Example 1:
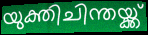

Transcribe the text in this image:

യുക്തിചിന്തയ്ക്ക്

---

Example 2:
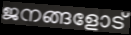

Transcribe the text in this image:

ജനങ്ങളോട്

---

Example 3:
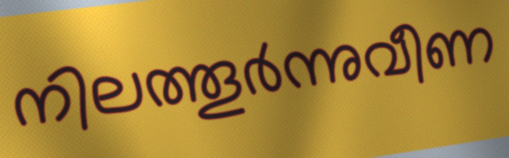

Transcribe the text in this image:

നിലത്തൂർന്നുവീണ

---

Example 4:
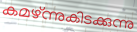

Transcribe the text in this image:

കമഴ്ന്നുകിടക്കുന്നു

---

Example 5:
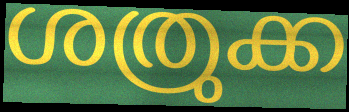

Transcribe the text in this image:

ശത്രുക്ക